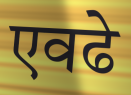
एवढे